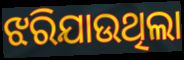
ଝରିଯାଉଥିଲା